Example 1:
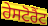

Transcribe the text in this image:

ਰੇਸਟੋਰੈਂਟ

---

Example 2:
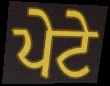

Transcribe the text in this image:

ਪੇਟੇ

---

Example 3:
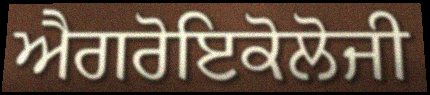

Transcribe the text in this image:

ਐਗਰੋਇਕੋਲੋਜੀ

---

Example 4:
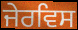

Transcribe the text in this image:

ਜੇਰਵਿਸ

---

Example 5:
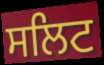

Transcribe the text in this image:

ਸਲਿਟ